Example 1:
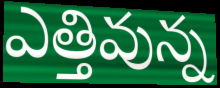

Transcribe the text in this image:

ఎత్తివున్న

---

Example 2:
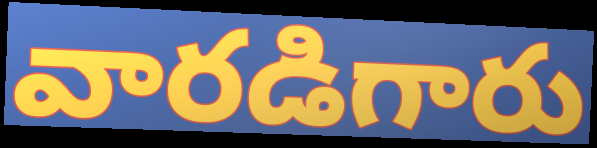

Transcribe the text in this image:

వారడిగారు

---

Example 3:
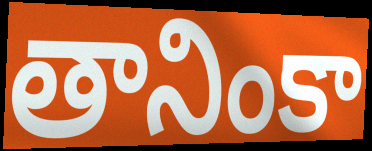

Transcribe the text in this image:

తానింకా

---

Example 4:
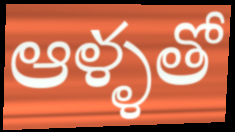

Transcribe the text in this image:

ఆళ్ళతో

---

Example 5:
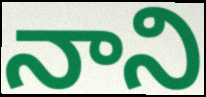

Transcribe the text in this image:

నాని